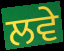
ਲਵੇ